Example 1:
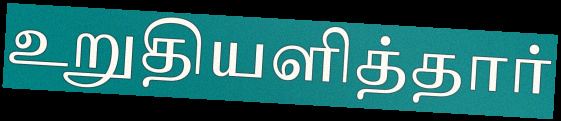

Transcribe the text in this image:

உறுதியளித்தார்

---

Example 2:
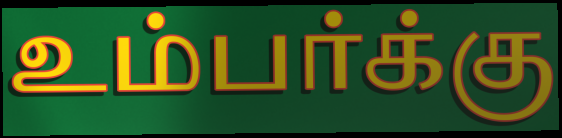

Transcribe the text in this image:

உம்பர்க்கு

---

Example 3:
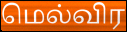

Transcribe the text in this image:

மெல்விர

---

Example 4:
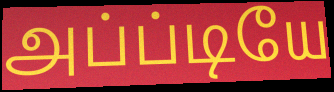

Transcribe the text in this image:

அப்ப்டியே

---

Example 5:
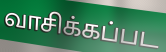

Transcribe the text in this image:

வாசிக்கப்பட